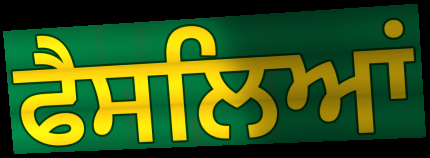
ਫੈਸਲਿਆਂ